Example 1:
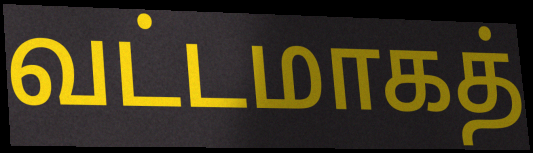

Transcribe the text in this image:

வட்டமாகத்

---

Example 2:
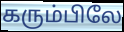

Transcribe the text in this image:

கரும்பிலே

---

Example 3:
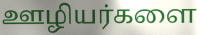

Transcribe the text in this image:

ஊழியர்களை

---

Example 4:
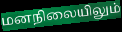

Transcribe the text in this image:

மனநிலையிலும்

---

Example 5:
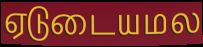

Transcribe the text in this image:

ஏடுடையமல